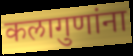
कलागुणांना